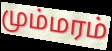
மும்மரம்